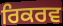
ਰਿਕਰਵ